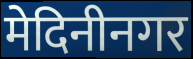
मेदिनीनगर